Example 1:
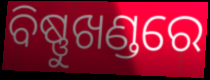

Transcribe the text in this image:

ବିଷ୍ଣୁଖଣ୍ଡରେ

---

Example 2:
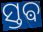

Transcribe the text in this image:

ସ୍ତଵ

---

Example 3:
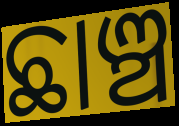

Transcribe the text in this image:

ଛାଞ୍ଚ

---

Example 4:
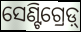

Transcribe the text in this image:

ସେଣ୍ଟିଗ୍ରେଡ଼୍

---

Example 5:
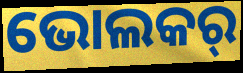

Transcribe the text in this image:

ଭୋଲକର୍